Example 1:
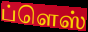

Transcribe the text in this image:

ப்ளெஸ்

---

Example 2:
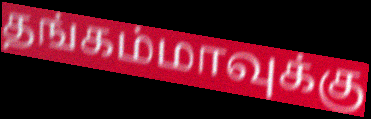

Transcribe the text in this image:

தங்கம்மாவுக்கு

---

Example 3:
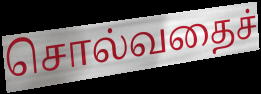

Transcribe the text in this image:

சொல்வதைச்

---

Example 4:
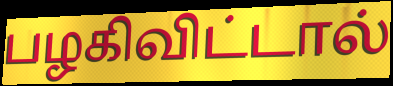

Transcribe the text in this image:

பழகிவிட்டால்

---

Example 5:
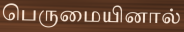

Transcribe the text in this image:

பெருமையினால்